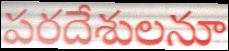
పరదేశులనూ